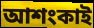
আশংকাই